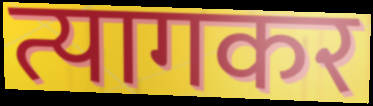
त्यागकर